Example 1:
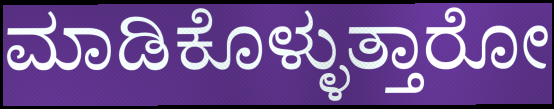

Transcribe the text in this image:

ಮಾಡಿಕೊಳ್ಳುತ್ತಾರೋ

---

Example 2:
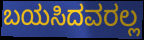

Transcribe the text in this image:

ಬಯಸಿದವರಲ್ಲ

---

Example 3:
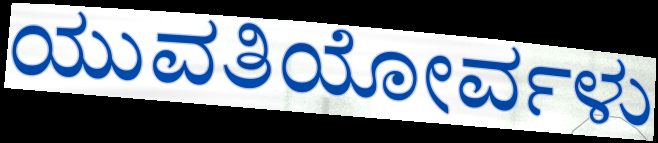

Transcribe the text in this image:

ಯುವತಿಯೋರ್ವಳು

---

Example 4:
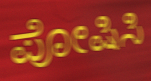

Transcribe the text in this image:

ಪೋಷಿಸಿ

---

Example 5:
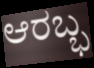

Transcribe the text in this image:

ಆರಬ್ಭ